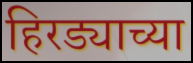
हिरड्याच्या